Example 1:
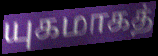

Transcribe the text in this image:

யுகமாகத்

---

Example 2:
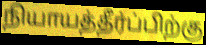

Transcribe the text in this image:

நியாயத்தீர்ப்பிற்கு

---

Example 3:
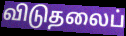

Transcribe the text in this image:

விடுதலைப்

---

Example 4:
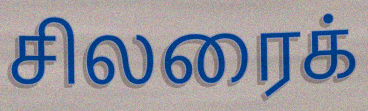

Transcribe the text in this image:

சிலரைக்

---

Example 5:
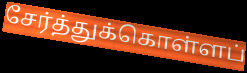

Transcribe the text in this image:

சேர்த்துக்கொள்ளப்